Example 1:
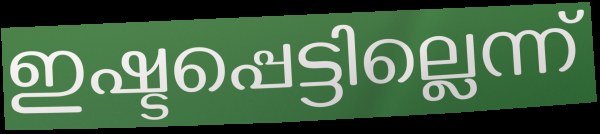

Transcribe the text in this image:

ഇഷ്ടപ്പെട്ടില്ലെന്ന്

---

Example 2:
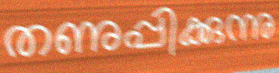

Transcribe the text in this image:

തണുപ്പിക്കുന്നു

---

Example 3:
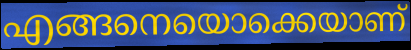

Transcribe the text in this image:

എങ്ങനെയൊക്കെയാണ്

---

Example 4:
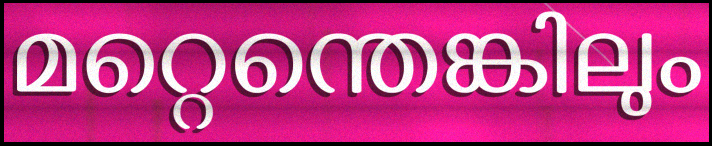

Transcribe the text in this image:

മറ്റെന്തെങ്കിലും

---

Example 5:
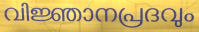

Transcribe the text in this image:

വിജ്ഞാനപ്രദവും